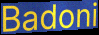
Badoni